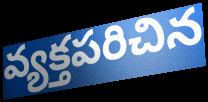
వ్యక్తపరిచిన